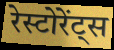
रेस्‍टोरेंट्स